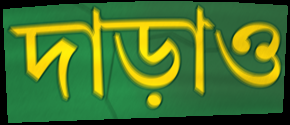
দাড়াও